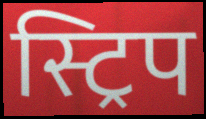
स्ट्रिप